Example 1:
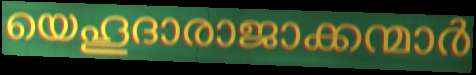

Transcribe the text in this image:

യെഹൂദാരാജാക്കന്മാർ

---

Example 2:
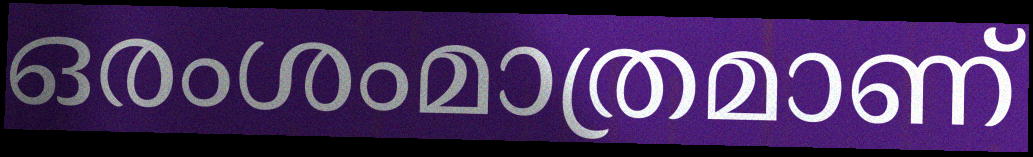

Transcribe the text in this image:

ഒരംശംമാത്രമാണ്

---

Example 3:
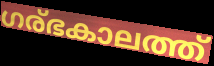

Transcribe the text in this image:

ഗര്ഭകാലത്ത്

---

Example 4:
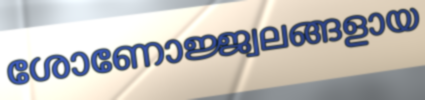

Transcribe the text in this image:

ശോണോജ്ജ്വലങ്ങളായ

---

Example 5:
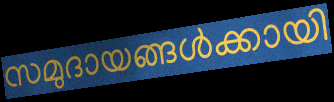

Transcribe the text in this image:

സമുദായങ്ങൾക്കായി